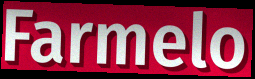
Farmelo